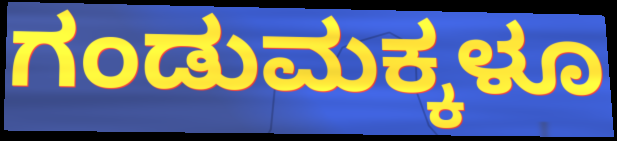
ಗಂಡುಮಕ್ಕಳೂ